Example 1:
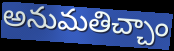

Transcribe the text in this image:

అనుమతిచ్చాం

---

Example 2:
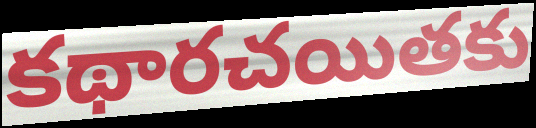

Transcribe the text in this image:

కథారచయితకు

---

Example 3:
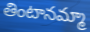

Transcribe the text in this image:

తింటానమ్మా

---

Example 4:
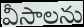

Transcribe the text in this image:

వీసాలను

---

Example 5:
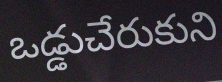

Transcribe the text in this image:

ఒడ్డుచేరుకుని